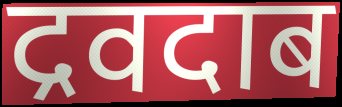
द्रवदाब